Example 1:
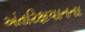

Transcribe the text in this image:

અંતરિક્ષયાનના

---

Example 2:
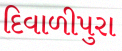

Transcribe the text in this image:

દિવાળીપુરા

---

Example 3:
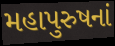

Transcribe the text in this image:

મહાપુરુષનાં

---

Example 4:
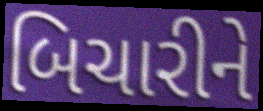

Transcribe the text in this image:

બિચારીને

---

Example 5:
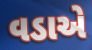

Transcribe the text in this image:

વડાએ